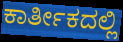
ಕಾರ್ತೀಕದಲ್ಲಿ